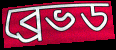
ব্রেভড